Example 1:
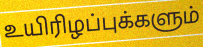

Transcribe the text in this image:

உயிரிழப்புக்களும்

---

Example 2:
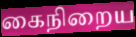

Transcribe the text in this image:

கைநிறைய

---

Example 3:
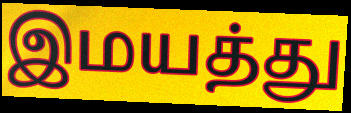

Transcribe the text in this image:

இமயத்து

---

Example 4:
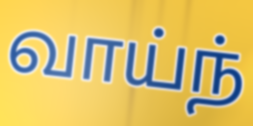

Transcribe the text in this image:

வாய்ந்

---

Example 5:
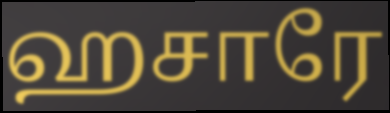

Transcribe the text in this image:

ஹசாரே